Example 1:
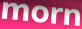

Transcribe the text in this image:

morn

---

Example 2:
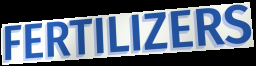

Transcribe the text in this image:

FERTILIZERS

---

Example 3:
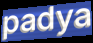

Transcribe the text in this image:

padya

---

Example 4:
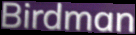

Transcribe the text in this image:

Birdman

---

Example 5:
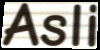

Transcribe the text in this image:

Asli